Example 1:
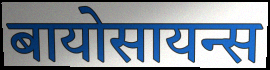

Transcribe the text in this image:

बायोसायन्स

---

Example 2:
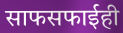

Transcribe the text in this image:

साफसफाईही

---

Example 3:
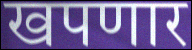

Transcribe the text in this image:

खपणार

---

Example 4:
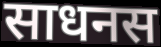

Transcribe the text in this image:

साधनस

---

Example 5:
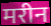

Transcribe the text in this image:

मरीन